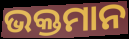
ଭକ୍ତମାନ